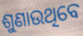
ଶୁଣାଉଥିବେ